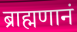
ब्राह्मणानं